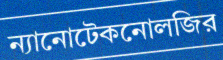
ন্যানোটেকনোলজির